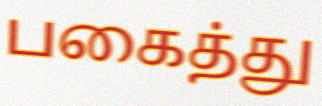
பகைத்து